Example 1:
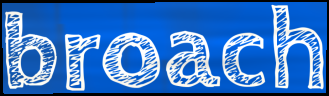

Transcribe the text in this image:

broach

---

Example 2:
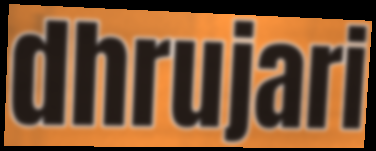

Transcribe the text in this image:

dhrujari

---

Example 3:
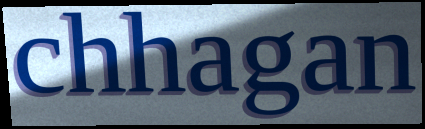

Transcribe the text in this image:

chhagan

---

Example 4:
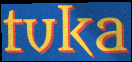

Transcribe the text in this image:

tuka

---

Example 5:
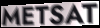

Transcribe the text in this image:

METSAT